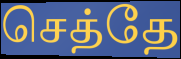
செத்தே